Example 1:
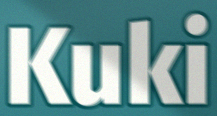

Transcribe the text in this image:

Kuki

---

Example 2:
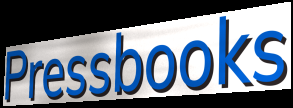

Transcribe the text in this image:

Pressbooks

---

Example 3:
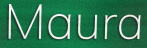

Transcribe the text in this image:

Maura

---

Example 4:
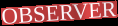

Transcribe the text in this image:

OBSERVER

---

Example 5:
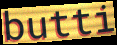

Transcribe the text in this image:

butti